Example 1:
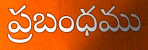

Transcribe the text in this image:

ప్రబంధము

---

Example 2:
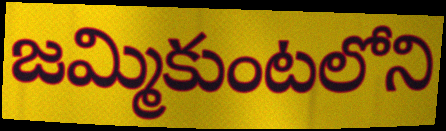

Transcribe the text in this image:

జమ్మికుంటలోని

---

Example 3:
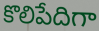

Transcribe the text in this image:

కొలిపేదిగా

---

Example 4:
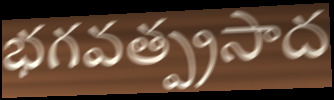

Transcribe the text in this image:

భగవత్ప్రసాద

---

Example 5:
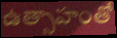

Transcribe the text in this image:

ఉత్సాహంతో